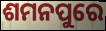
ଶମନପୁରେ